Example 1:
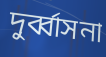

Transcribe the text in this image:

দুর্ব্বাসনা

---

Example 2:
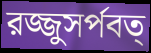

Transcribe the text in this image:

রজ্জুসর্পবত্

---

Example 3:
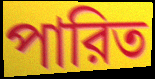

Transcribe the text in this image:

পারিত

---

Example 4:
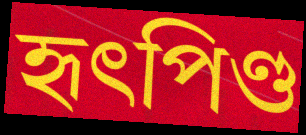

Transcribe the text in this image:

হৃৎপিণ্ড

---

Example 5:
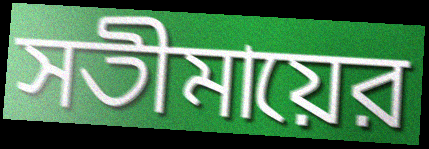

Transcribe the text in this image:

সতীমায়ের